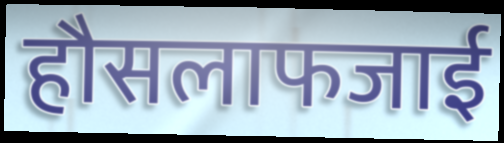
हौसलाफजाई